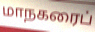
மாநகரைப்